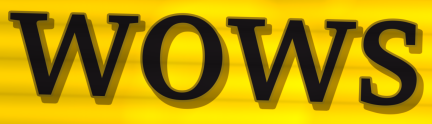
wows